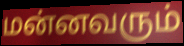
மன்னவரும்